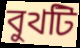
বুথটি